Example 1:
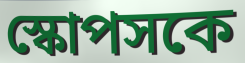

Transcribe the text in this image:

স্কোপসকে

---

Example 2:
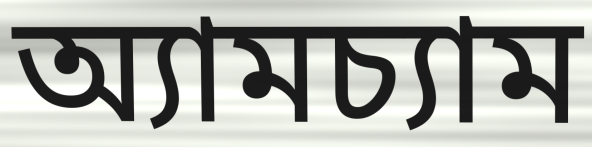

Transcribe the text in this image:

অ্যামচ্যাম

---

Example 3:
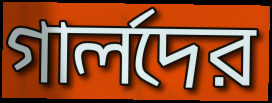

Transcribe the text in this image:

গার্লদের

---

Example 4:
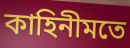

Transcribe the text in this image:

কাহিনীমতে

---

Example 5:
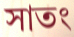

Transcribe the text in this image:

সাতং